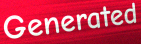
Generated